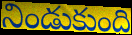
నిండుకుంది